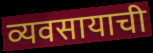
व्यवसायाची